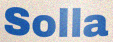
Solla